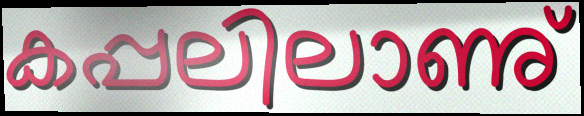
കപ്പലിലാണു്